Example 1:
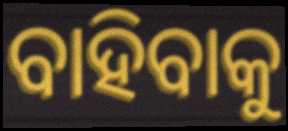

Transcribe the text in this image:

ବାହିବାକୁ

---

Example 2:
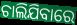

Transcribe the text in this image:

ଚାଲିଯିବାରେ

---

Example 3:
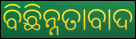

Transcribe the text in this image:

ବିଛିନ୍ନତାବାଦ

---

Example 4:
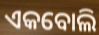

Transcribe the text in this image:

ଏକବୋଲି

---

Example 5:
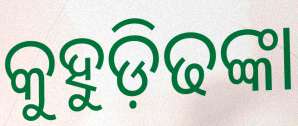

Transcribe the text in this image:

କୁହୁଡ଼ିଢଙ୍କା